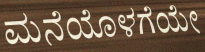
ಮನೆಯೊಳಗೆಯೇ